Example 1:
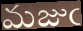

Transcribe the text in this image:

మజుఁ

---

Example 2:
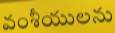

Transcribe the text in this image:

వంశీయులను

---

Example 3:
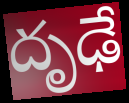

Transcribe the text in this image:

దృఢే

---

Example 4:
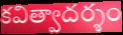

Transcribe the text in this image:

కవిత్వాదర్శం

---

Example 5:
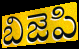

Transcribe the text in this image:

బిజెపి